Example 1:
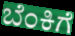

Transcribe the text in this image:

ಬೆಂಕಿಗೆ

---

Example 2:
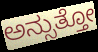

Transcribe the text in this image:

ಅನ್ಸುತ್ತೋ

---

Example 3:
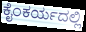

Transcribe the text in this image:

ಕೈಂಕರ್ಯದಲ್ಲಿ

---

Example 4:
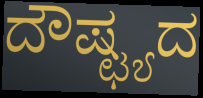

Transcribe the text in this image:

ದೌಷ್ಟ್ಯದ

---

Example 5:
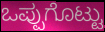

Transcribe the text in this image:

ಒಪ್ಪುಗೊಟ್ಟು